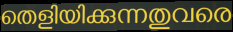
തെളിയിക്കുന്നതുവരെ